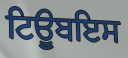
ਟਿਊਬਇਸ